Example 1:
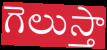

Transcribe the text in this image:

గెలుస్తా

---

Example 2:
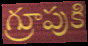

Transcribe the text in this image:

గ్రూపుకి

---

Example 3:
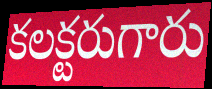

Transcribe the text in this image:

కలక్టరుగారు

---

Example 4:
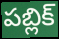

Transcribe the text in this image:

పబ్లిక్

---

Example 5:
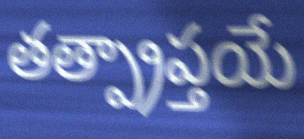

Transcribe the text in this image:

తత్ప్రాప్తయే